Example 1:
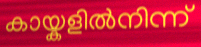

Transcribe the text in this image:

കായ്കളിൽനിന്ന്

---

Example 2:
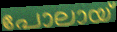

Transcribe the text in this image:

പോലായ്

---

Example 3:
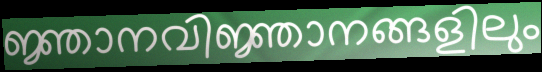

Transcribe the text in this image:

ജ്ഞാനവിജ്ഞാനങ്ങളിലും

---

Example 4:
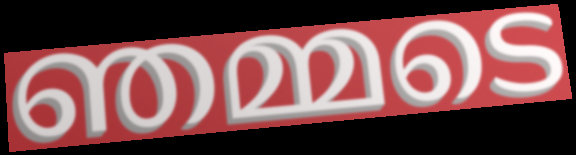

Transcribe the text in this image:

ഞമ്മടെ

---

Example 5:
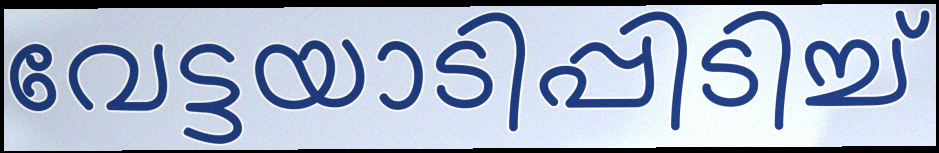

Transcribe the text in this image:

വേട്ടയാടിപ്പിടിച്ച്